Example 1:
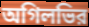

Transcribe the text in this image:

অগিলভির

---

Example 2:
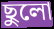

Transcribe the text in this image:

ছুলো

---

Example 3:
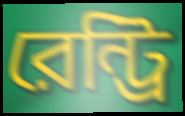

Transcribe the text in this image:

রেন্ট্রি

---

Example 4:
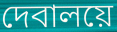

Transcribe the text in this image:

দেবালয়ে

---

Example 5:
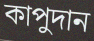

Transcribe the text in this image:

কাপুদান